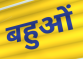
बहुओं